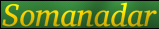
Somanadar